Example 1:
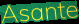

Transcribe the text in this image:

Asante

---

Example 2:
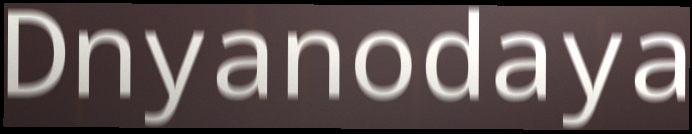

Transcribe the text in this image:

Dnyanodaya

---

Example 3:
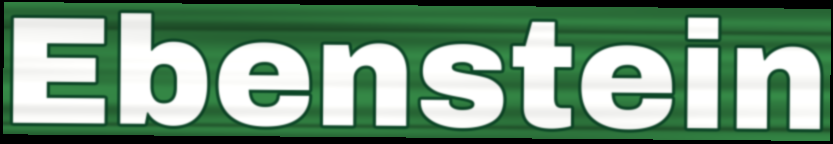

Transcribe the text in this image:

Ebenstein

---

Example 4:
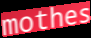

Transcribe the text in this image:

mothes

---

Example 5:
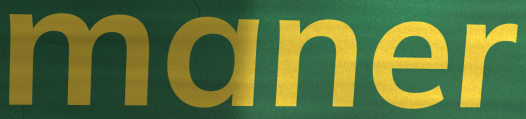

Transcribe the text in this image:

maner